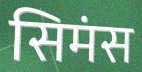
सिमंस